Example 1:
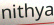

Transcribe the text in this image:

nithya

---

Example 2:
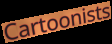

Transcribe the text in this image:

Cartoonists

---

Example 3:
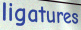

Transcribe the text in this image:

ligatures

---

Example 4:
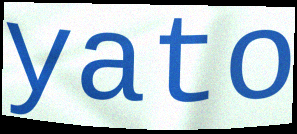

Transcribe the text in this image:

yato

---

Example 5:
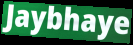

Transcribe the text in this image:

Jaybhaye